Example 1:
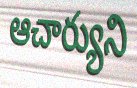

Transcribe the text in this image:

ఆచార్యుని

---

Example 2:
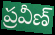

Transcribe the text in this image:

ప్రవీణ్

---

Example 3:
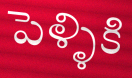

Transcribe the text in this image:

పెళ్ళికి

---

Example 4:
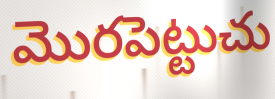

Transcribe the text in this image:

మొరపెట్టుచు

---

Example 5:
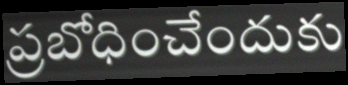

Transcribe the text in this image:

ప్రబోధించేందుకు